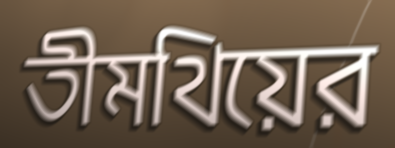
তীমথিয়ের